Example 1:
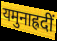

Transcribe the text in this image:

यमुनाह्रदीं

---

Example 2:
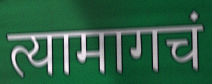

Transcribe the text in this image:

त्यामागचं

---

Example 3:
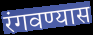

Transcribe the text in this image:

रंगवण्यास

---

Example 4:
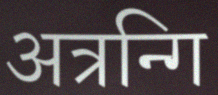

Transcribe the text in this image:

अत्रन्गि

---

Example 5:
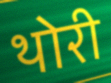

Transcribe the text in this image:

थोरी